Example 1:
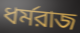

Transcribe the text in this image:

ধর্মরাজ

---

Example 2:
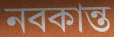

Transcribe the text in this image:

নবকান্ত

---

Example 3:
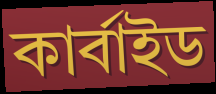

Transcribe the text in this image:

কার্বাইড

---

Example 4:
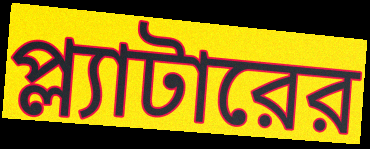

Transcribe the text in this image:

প্ল্যাটারের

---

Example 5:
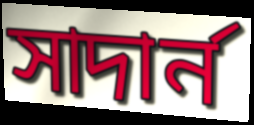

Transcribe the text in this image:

সাদার্ন